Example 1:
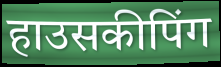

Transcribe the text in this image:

हाउसकीपिंग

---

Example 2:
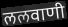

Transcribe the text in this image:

ललवाणी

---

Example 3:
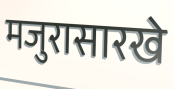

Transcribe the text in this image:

मजुरासारखे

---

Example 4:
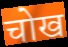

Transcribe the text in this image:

चोख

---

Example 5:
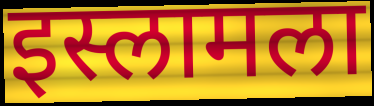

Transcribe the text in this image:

इस्लामला